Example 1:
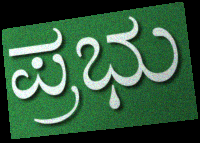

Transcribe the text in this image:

ಪ್ರಭು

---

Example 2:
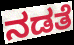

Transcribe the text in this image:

ನಡತೆ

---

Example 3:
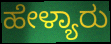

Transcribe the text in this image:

ಹೇಳ್ಯಾರು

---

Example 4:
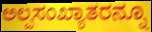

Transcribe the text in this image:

ಅಲ್ಪಸಂಖ್ಯಾತರನ್ನೂ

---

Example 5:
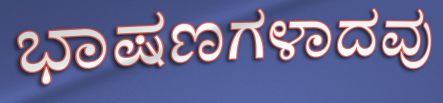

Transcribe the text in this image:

ಭಾಷಣಗಳಾದವು